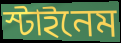
স্টাইনেম